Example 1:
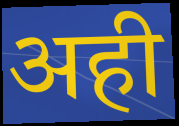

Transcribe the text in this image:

अही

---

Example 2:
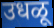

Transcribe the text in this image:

उधळू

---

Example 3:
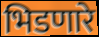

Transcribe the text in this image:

भिडणारे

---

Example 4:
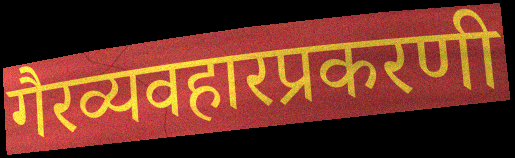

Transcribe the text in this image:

गैरव्यवहारप्रकरणी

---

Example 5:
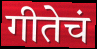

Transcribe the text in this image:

गीतेचं